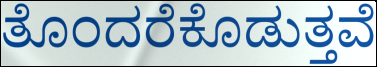
ತೊಂದರೆಕೊಡುತ್ತವೆ